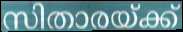
സിതാരയ്ക്ക്